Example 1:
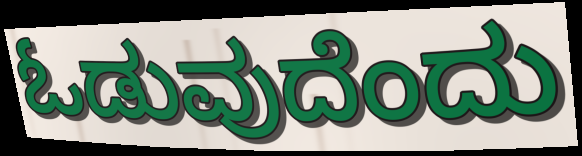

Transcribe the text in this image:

ಓಡುವುದೆಂದು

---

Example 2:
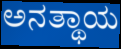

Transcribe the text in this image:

ಅನತ್ಥಾಯ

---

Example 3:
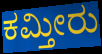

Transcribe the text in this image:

ಕಮ್ತೀರು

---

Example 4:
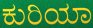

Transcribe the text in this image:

ಕುರಿಯಾ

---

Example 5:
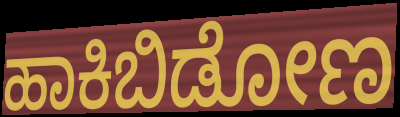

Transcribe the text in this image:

ಹಾಕಿಬಿಡೋಣ